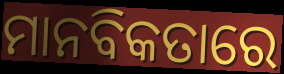
ମାନବିକତାରେ